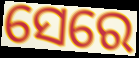
ସେରେ